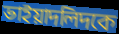
ভাইয়াদলিদকে